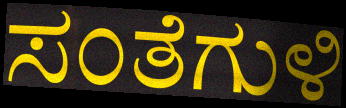
ಸಂತೆಗುಳಿ